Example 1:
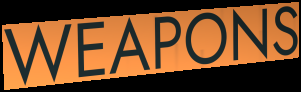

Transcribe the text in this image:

WEAPONS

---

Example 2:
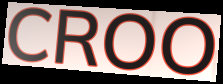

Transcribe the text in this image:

CROO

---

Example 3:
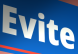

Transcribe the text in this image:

Evite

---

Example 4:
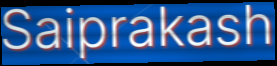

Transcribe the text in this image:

Saiprakash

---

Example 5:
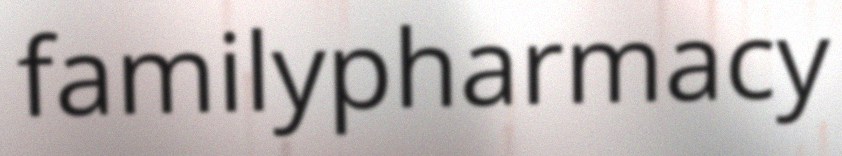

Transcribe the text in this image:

familypharmacy